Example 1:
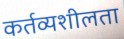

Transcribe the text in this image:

कर्तव्यशीलता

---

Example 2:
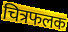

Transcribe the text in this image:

चित्रफलक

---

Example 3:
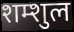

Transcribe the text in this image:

शम्शुल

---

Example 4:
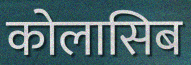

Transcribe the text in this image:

कोलासिब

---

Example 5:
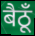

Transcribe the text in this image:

बैठूँ